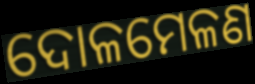
ଦୋଳମେଳଣ